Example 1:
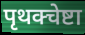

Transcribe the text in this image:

पृथक्चेष्टा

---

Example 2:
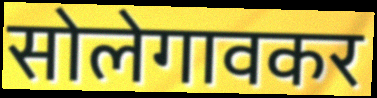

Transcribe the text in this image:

सोलेगावकर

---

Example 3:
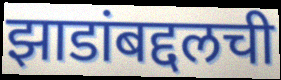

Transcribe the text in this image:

झाडांबद्दलची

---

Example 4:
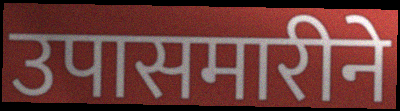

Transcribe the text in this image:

उपासमारीने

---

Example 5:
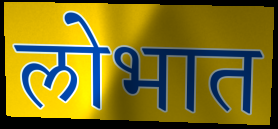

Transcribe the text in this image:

लोभात